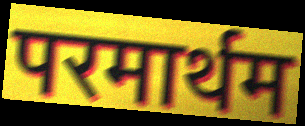
परमार्थम